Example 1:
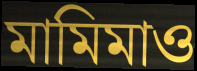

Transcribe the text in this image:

মামিমাও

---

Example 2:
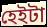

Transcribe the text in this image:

হেইটা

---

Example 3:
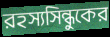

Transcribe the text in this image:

রহস্যসিন্ধুকের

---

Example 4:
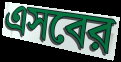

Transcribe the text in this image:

এসবের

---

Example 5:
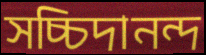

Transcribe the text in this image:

সচ্চিদানন্দ